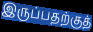
இருப்பதற்குத்